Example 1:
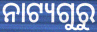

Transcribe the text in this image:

ନାଟ୍ୟଗୁରୁ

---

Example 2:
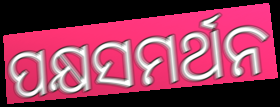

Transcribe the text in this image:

ପକ୍ଷସମର୍ଥନ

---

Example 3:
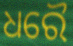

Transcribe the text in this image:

ଧରୈ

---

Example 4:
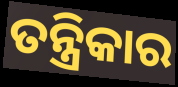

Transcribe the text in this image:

ତନ୍ତ୍ରିକାର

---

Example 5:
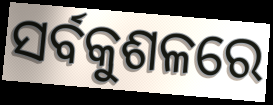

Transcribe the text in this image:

ସର୍ବକୁଶଳରେ